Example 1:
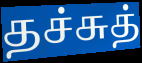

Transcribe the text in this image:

தச்சுத்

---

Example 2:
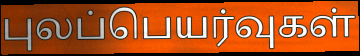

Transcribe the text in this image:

புலப்பெயர்வுகள்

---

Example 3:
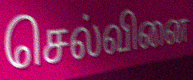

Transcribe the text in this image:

செல்வினை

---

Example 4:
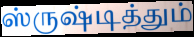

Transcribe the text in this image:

ஸ்ருஷ்டித்தும்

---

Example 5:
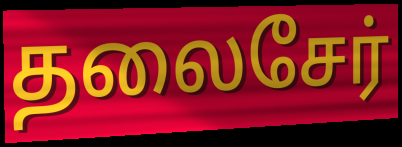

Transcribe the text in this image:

தலைசேர்